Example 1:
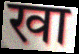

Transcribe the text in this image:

खा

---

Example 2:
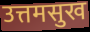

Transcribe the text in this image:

उत्तमसुख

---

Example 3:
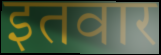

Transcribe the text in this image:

इतवार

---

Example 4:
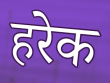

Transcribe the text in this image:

हरेक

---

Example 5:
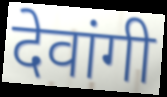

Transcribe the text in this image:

देवांगी